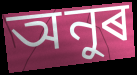
অনুৰ